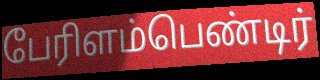
பேரிளம்பெண்டிர்